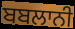
ਬਬਲਾਨੀ